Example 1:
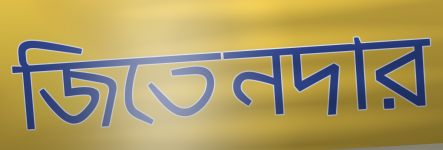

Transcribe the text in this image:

জিতেনদার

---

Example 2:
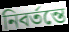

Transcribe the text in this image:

নিবর্তন্তে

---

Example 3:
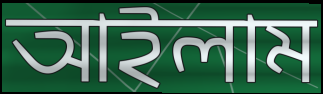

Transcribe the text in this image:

আইলাম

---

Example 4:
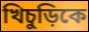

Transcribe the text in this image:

খিচুড়িকে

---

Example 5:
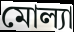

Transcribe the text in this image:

মোল্যা